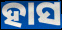
ହାସ